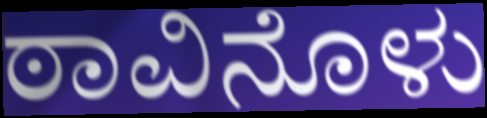
ಠಾವಿನೊಳು